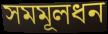
সমমূলধন